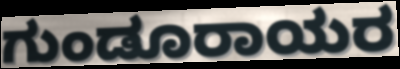
ಗುಂಡೂರಾಯರ